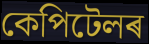
কেপিটেলৰ